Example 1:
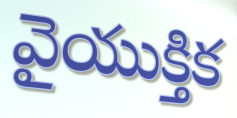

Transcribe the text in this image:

వైయుక్తిక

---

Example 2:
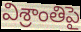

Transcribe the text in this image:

విశ్రాంతిపై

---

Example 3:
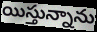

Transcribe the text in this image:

యిస్తున్నాను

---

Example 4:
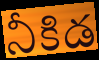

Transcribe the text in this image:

నీకిడ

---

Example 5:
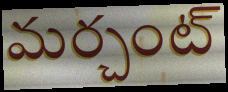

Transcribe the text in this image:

మర్చంట్